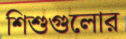
শিশুগুলোর